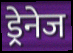
ड्रेनेज